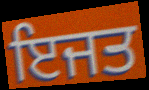
ਇਜਤ